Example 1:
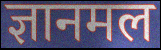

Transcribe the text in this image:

ज्ञानमल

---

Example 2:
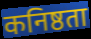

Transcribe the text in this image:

कनिष्ठता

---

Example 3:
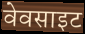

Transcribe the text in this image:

वेवसाइट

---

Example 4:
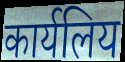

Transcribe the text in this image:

कार्यलिय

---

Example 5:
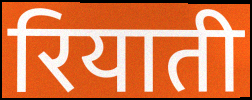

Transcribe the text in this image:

रियाती